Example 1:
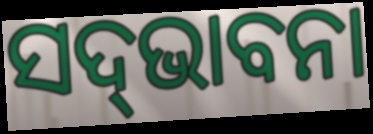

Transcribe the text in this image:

ସଦ୍‌ଭାବନା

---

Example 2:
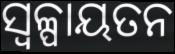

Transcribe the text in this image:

ସ୍ୱଳ୍ପାୟତନ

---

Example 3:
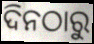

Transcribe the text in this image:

ଦିନଠାରୁ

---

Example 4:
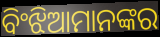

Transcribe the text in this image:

ବିଂଝିଆମାନଙ୍କର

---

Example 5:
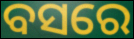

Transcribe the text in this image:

ବସରେ